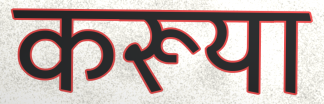
करूया